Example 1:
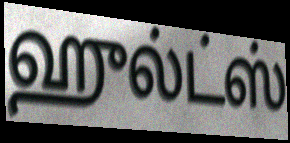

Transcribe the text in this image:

ஹுல்ட்ஸ்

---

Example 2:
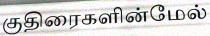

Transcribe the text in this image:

குதிரைகளின்மேல்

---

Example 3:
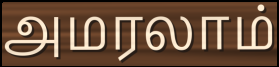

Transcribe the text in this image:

அமரலாம்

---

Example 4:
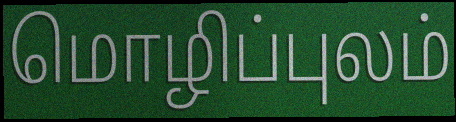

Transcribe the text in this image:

மொழிப்புலம்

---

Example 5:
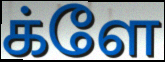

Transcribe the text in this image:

க்ளே